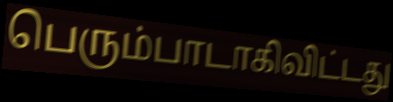
பெரும்பாடாகிவிட்டது